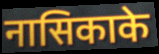
नासिकाके